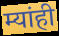
म्यांही